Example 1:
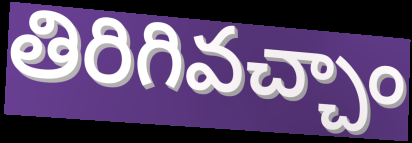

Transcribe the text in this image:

తిరిగివచ్చాం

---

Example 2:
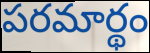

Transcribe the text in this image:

పరమార్థం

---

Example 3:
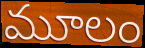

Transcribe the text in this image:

మూలం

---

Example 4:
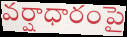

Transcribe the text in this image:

వర్షాధారంపై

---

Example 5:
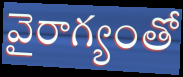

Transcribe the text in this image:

వైరాగ్యంతో